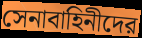
সেনাবাহিনীদের